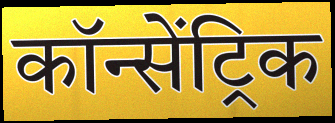
कॉन्सेंट्रिक